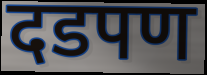
दडपण